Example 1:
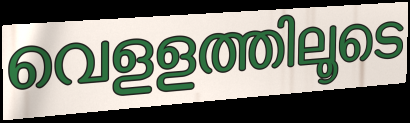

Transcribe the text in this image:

വെളളത്തിലൂടെ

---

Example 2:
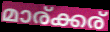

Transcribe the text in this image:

മാര്ക്കര്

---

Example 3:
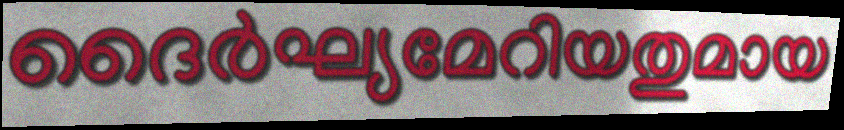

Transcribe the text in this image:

ദൈർഘ്യമേറിയതുമായ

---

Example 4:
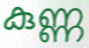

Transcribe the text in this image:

കുണ്ണ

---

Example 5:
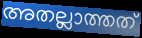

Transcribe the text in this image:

അതല്ലാത്തത്